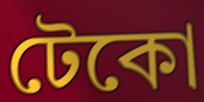
টেকো